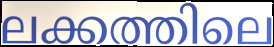
ലക്കത്തിലെ